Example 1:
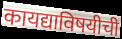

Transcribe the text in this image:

कायद्याविषयीची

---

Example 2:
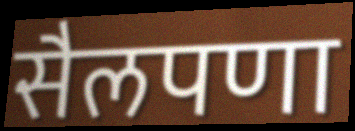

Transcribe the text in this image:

सैलपणा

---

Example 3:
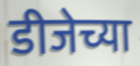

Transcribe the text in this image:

डीजेच्या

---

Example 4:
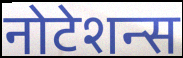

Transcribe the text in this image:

नोटेशन्स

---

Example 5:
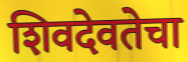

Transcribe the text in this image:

शिवदेवतेचा